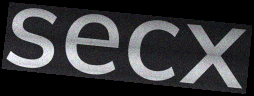
secx